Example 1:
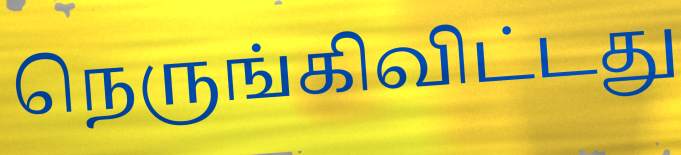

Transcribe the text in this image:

நெருங்கிவிட்டது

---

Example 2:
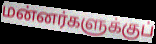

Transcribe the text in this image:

மன்னர்களுக்குப்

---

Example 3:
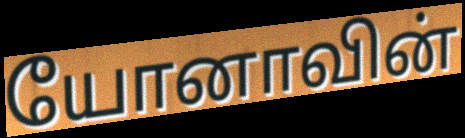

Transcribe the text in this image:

யோனாவின்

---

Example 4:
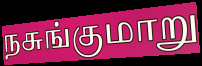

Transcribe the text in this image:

நசுங்குமாறு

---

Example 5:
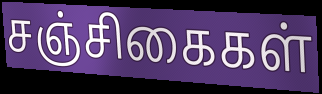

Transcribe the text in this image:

சஞ்சிகைகள்